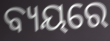
ବ୍ୟୟରେ